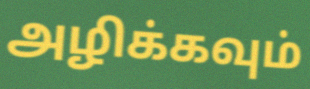
அழிக்கவும்